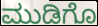
ಮುಡಿಗೊ